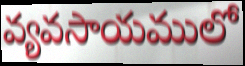
వ్యవసాయములో